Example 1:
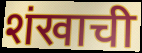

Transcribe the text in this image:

शंखाची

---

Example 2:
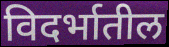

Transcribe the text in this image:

विदर्भातील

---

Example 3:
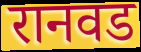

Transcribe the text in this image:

रानवड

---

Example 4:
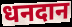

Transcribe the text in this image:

धनदान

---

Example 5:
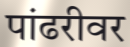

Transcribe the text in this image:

पांढरीवर